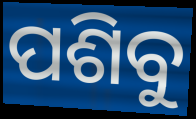
ପଶିବୁ